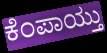
ಕೆಂಪಾಯ್ತು